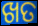
ଖତ